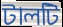
টালটি